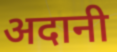
अदानी